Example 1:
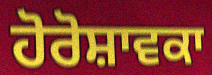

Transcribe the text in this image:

ਹੋਰੋਸ਼ਾਵਕਾ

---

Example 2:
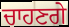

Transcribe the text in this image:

ਚਾਹਣਗੇ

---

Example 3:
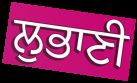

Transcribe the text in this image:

ਲੁਭਾਣੀ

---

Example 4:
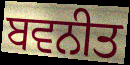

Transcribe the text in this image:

ਬਵਨੀਤ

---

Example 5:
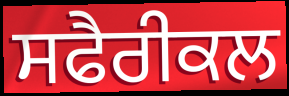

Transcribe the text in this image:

ਸਫੈਰੀਕਲ